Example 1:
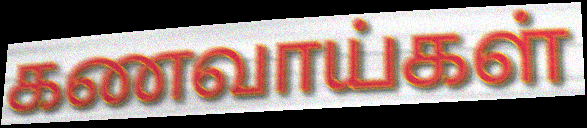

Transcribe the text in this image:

கணவாய்கள்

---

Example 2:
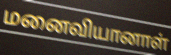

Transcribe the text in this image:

மனைவியானாள்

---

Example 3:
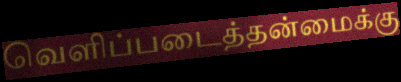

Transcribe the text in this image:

வெளிப்படைத்தன்மைக்கு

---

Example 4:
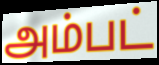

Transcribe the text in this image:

அம்பட்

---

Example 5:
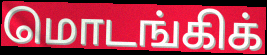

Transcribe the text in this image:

மொடங்கிக்